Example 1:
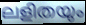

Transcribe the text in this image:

ലളിതയും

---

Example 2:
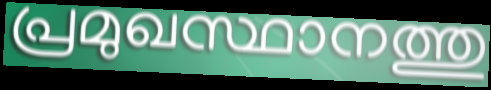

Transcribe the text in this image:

പ്രമുഖസ്ഥാനത്തു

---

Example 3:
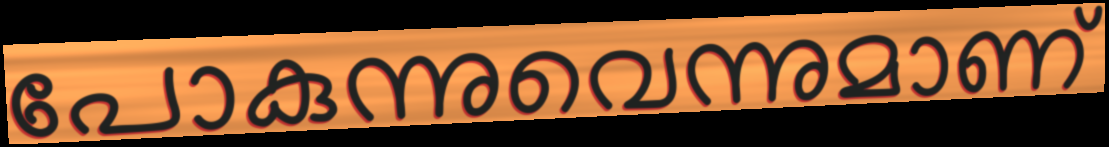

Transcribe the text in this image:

പോകുന്നുവെന്നുമാണ്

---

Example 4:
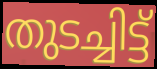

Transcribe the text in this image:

തുടച്ചിട്ട്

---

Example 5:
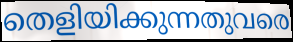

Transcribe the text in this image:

തെളിയിക്കുന്നതുവരെ